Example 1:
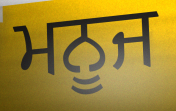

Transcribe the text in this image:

ਮਨੂਜ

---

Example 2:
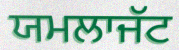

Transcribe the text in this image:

ਯਮਲਾਜੱਟ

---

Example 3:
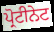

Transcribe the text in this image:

ਪ੍ਰੋਟੀਨੇਟ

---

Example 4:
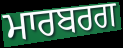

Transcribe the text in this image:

ਮਾਰਬਰਗ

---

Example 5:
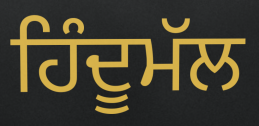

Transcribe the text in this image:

ਹਿੰਦੂਮੱਲ